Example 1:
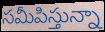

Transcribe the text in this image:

సమీపిస్తున్నా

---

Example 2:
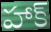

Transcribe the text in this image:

హాక్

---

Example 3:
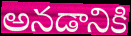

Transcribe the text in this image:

అనడానికి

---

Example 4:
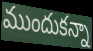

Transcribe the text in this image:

ముందుకన్నా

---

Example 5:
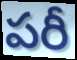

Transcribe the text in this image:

పరీ